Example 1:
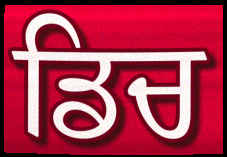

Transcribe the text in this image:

ਡਿਚ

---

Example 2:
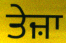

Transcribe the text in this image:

ਤੇਜ਼ਾ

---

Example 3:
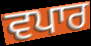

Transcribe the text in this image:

ਵਪਾਰ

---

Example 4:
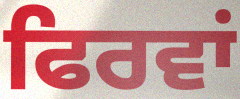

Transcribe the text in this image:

ਫਿਰਵਾਂ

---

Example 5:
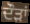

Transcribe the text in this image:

ਦੌੜਾਂ